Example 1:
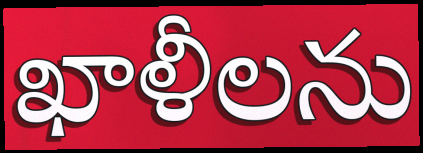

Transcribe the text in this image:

ఖాళీలను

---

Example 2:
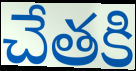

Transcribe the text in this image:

చేతకి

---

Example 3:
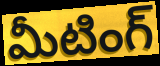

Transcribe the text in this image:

మీటింగ్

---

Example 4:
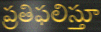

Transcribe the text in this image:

ప్రతిఫలిస్తూ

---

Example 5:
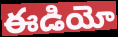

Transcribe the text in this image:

ఈడియో